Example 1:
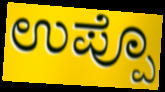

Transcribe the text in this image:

ಉಪ್ಪೊ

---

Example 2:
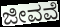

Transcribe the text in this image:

ಜೀವವೆ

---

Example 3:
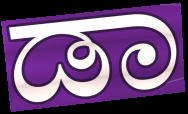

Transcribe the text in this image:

ಡಾ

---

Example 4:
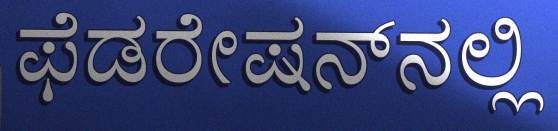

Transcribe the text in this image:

ಫೆಡರೇಷನ್‌ನಲ್ಲಿ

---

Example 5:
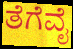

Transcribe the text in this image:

ತೆಗೆವೈ